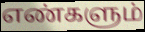
எண்களும்